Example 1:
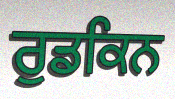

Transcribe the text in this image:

ਰੁਡਕਿਨ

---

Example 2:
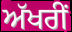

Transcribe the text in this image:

ਅੱਖਰੀਂ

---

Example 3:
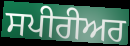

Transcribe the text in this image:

ਸਪੀਰੀਅਰ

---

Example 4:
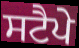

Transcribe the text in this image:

ਸਟੈਪੇ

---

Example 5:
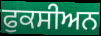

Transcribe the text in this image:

ਫੁਕਸੀਅਨ